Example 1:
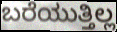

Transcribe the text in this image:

ಬರೆಯುತ್ತಿಲ್ಲ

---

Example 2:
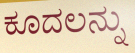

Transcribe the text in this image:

ಕೂದಲನ್ನು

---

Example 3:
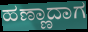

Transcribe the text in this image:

ಹಣ್ಣಾದಾಗ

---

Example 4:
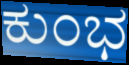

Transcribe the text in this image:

ಕುಂಭ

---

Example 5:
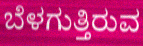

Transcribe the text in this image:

ಬೆಳಗುತ್ತಿರುವ